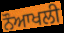
ਨੌਆਖਲੀ